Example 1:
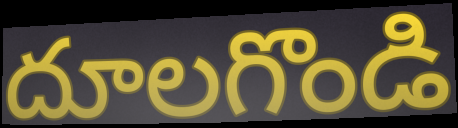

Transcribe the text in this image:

దూలగొండి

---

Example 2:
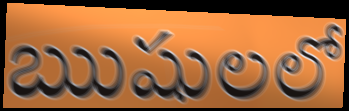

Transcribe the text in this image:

ఋషులలో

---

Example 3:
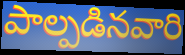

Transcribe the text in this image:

పాల్పడినవారి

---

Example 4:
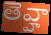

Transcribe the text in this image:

తెవ్హా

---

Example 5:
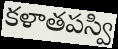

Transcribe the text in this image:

కళాతపస్వి